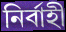
নির্বাহী